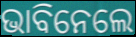
ଭାବିନେଲେ